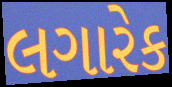
લગારેક